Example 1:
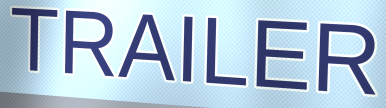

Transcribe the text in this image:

TRAILER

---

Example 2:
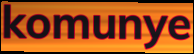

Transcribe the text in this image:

komunye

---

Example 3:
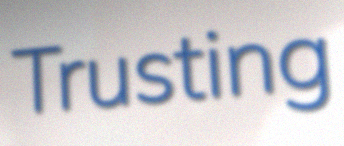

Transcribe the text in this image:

Trusting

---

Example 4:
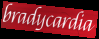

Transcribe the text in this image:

bradycardia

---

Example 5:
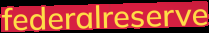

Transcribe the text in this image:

federalreserve